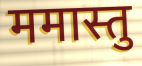
ममास्तु